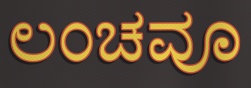
ಲಂಚವೂ